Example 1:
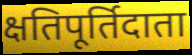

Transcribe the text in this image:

क्षतिपूर्तिदाता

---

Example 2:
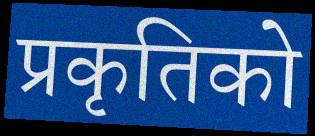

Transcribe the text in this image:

प्रकृतिको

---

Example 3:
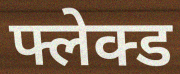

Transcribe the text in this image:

फ्लेक्ड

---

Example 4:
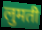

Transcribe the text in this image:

लुमती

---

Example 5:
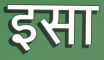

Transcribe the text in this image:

इसा